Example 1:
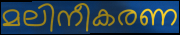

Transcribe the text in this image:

മലിനീകരണ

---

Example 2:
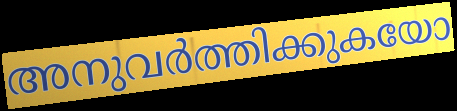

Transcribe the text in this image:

അനുവർത്തിക്കുകയോ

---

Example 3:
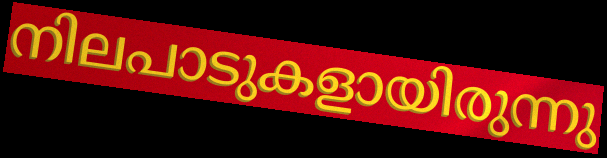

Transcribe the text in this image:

നിലപാടുകളായിരുന്നു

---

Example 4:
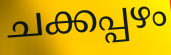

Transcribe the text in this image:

ചക്കപ്പഴം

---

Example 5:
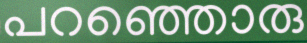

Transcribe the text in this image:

പറഞ്ഞൊരു